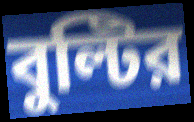
বুল্টির